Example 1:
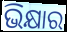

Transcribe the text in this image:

ଭିକ୍ଷାର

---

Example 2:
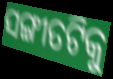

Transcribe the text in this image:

ସଙ୍ଗୀତଟିକୁ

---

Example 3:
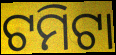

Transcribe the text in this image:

ଟମିଟା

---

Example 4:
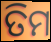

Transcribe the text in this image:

ତିମ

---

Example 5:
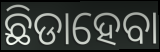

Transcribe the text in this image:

ଛିଡାହେବା